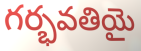
గర్భవతియై